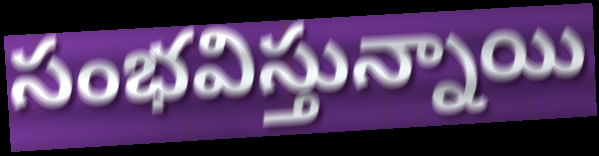
సంభవిస్తున్నాయి